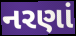
નરણાં